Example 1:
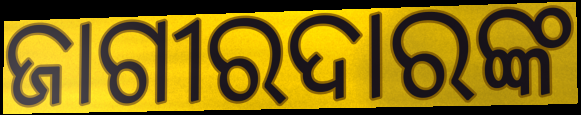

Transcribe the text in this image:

ଜାଗୀରଦାରଙ୍କ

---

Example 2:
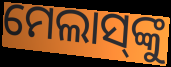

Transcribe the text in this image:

ମେଲାସ୍‌ଙ୍କୁ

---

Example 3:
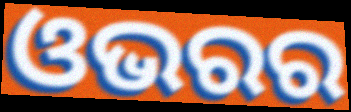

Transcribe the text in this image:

ଓଭରର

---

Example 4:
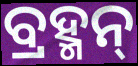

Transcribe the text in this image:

ବ୍ରହ୍ମନ୍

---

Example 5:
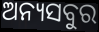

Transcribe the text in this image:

ଅନ୍ୟସବୁର